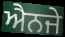
ਐਨਜੇ